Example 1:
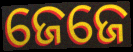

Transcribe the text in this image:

ଜେଜେ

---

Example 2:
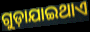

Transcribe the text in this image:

ଗୁଡ଼ାଯାଇଥାଏ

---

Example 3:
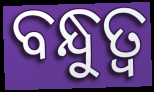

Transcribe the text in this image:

ବନ୍ଧୁତ୍ୱ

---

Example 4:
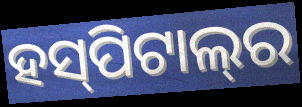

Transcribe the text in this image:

ହସ୍‍ପିଟାଲ୍‍ର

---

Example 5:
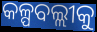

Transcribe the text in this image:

କଳ୍ପବଲ୍ଲୀକୁ